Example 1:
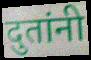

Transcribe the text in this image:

दुतांनी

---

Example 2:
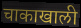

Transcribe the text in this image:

चाकाखाली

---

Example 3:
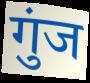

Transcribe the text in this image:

गुंज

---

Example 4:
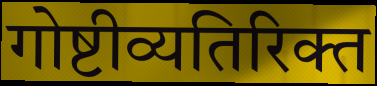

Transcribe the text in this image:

गोष्टीव्यतिरिक्त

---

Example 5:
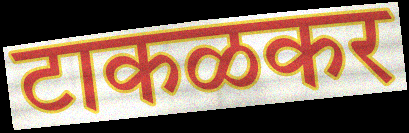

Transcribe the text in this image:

टाकळकर